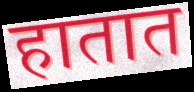
हातात